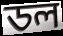
ডল